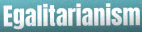
Egalitarianism